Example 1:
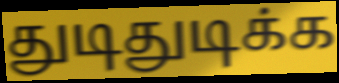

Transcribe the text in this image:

துடிதுடிக்க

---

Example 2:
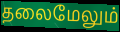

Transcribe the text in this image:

தலைமேலும்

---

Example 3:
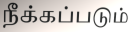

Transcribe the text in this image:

நீக்கப்படும்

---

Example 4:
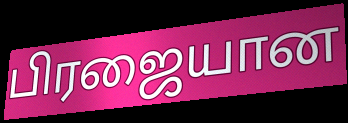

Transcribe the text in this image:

பிரஜையான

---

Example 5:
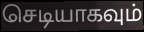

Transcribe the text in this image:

செடியாகவும்